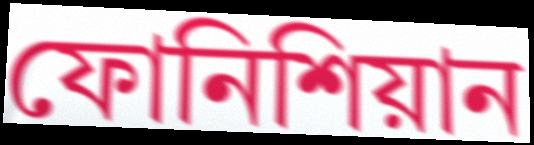
ফোনিশিয়ান